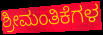
ಶ್ರೀಮಂತಿಕೆಗಳ